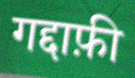
गद्दाफ़ी